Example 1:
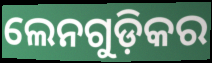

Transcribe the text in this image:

ଲେନଗୁଡ଼ିକର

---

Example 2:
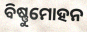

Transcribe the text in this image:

ବିଷ୍ଣୁମୋହନ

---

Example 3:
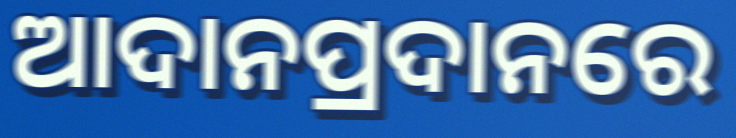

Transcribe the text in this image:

ଆଦାନପ୍ରଦାନରେ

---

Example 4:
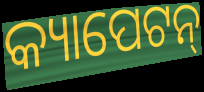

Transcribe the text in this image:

କ୍ୟାପେଟନ୍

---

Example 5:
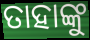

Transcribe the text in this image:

ତାହାଙ୍କୁ